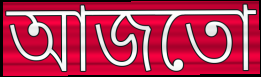
আজতো